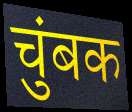
चुंबक